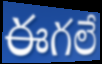
ఈగలే